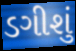
ડગીશું